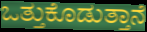
ಒತ್ತುಕೊಡುತ್ತಾನೆ